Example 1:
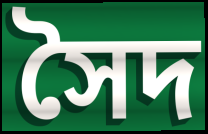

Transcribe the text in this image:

সৈদ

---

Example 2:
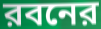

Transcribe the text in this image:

রবনের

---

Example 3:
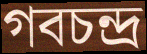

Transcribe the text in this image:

গবচন্দ্র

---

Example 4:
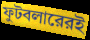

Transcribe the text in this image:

ফুটবলারেরই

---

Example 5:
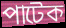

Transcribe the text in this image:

পাটেক